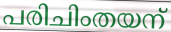
പരിചിംതയന്